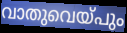
വാതുവെയ്പും